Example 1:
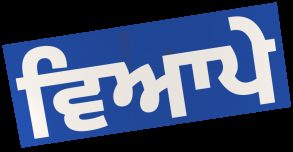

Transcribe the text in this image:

ਵਿਆਪੇ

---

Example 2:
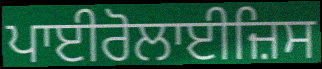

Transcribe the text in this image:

ਪਾਈਰੋਲਾਈਜ਼ਿਸ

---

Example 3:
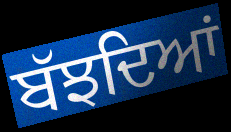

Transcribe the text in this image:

ਬੱਝਦਿਆਂ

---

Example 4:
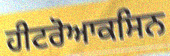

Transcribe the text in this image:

ਹੀਟਰੋਆਕਸਿਨ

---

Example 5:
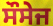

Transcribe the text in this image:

ਸੌਸੇਜ